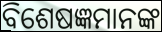
ବିଶେଷଜ୍ଞମାନଙ୍କ